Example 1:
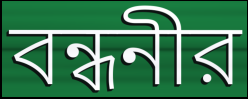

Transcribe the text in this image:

বন্ধনীর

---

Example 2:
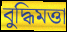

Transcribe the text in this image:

বুদ্ধিমত্তা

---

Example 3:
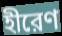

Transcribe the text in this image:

হীরেণ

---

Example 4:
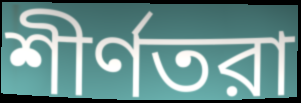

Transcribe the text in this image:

শীর্ণতরা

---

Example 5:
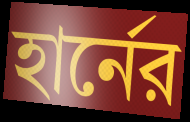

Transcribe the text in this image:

হার্নের